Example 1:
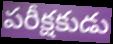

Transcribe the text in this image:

పరీక్షకుడు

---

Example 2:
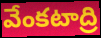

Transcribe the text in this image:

వేంకటాద్రి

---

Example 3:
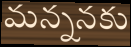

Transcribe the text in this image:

మన్ననకు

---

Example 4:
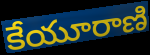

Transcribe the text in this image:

కేయూరాణి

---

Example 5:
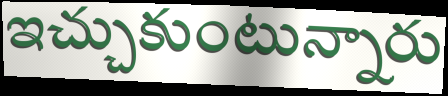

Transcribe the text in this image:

ఇచ్చుకుంటున్నారు